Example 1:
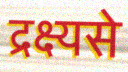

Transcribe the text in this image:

द्रक्ष्यसे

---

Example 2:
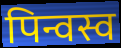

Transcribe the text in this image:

पिन्वस्व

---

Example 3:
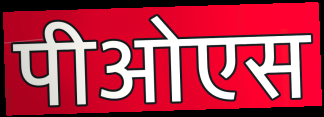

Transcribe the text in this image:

पीओएस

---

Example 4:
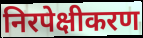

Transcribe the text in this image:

निरपेक्षीकरण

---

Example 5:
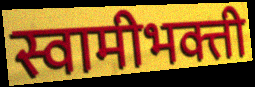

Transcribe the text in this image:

स्वामीभक्ती